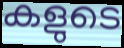
കളുടെ